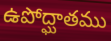
ఉపోద్ఘాతము